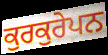
ਕੁਰਕੁਰੇਪਨ